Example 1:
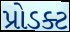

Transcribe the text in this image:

પ્રોડક્ટ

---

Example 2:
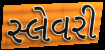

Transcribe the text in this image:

સ્લેવરી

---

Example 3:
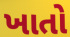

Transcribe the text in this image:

ખાતો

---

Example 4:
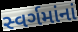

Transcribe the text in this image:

સ્વર્ગમાંનાં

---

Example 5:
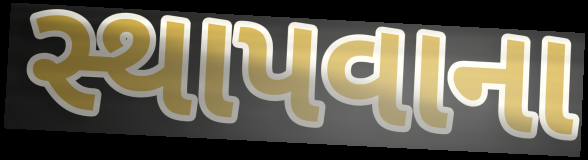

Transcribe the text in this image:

સ્થાપવાના